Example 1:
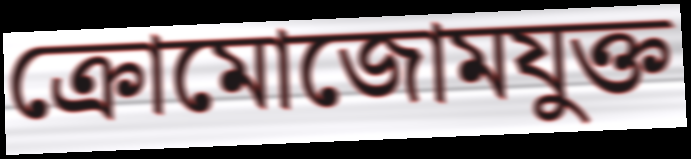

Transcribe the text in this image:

ক্রোমোজোমযুক্ত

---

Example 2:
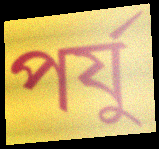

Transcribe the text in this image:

পর্যু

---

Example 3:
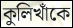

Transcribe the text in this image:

কুলিখাঁকে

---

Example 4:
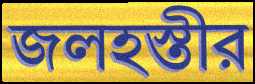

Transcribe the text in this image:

জলহস্তীর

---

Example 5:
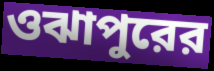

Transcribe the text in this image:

ওঝাপুরের